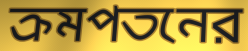
ক্রমপতনের